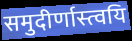
समुदीर्णास्त्वयि